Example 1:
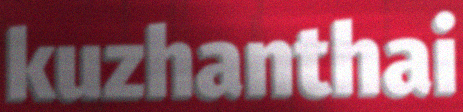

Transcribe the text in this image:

kuzhanthai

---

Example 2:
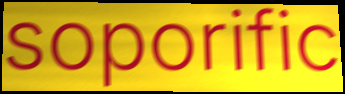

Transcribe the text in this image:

soporific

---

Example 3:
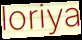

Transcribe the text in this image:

loriya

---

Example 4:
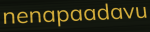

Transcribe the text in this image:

nenapaadavu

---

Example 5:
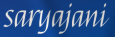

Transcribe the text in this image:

saryajani